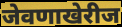
जेवणाखेरीज